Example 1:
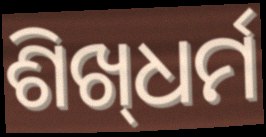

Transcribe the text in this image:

ଶିଖ୍‌ଧର୍ମ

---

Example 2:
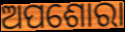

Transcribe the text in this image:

ଅପଶୋରା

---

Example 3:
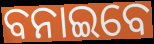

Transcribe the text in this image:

ବନାଇବେ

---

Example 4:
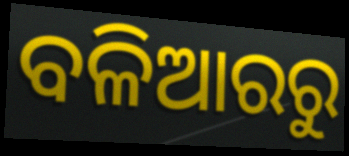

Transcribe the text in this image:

ବଳିଆରରୁ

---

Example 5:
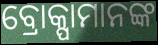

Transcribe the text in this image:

ବ୍ରୋକ୍ପାମାନଙ୍କ